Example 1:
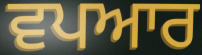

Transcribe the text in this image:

ਵਪਆਰ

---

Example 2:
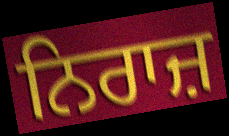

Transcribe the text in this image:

ਨਿਰਾਜ਼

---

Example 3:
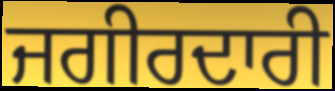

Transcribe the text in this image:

ਜਗੀਰਦਾਰੀ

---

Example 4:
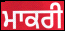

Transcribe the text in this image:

ਮਾਕਰੀ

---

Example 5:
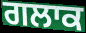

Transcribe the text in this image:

ਗਲਾਕ